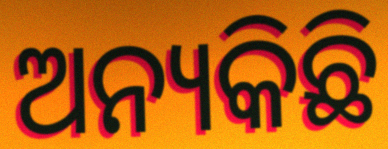
ଅନ୍ୟକିଛି